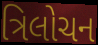
ત્રિલોચન